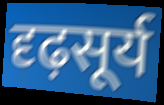
दृढ़सूर्य